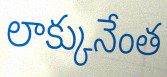
లాక్కునేంత